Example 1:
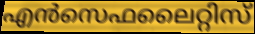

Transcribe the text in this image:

എൻസെഫലൈറ്റിസ്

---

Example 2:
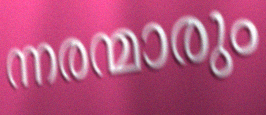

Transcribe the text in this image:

ന്നരന്മാരും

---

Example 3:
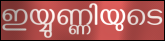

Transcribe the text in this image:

ഇയ്യുണ്ണിയുടെ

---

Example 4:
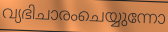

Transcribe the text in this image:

വ്യഭിചാരംചെയ്യുന്നോ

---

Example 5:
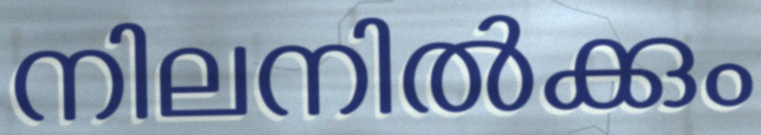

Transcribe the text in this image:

നിലനിൽക്കും